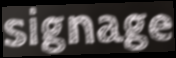
signage